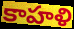
కాహళి